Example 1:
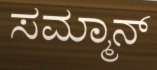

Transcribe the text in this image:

ಸಮ್ಮಾನ್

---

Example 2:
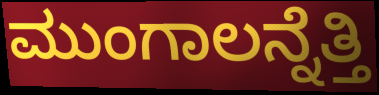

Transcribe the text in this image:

ಮುಂಗಾಲನ್ನೆತ್ತಿ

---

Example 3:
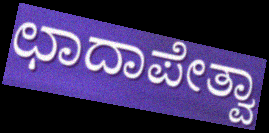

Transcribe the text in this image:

ಛಾದಾಪೇತ್ವಾ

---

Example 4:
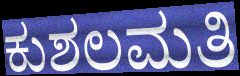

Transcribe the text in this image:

ಕುಶಲಮತಿ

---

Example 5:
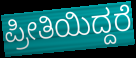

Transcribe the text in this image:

ಪ್ರೀತಿಯಿದ್ದರೆ